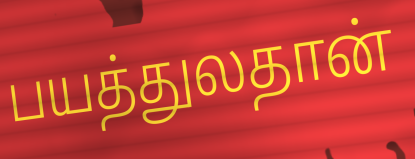
பயத்துலதான்